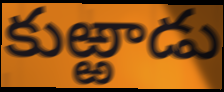
కుఱ్ఱాడు